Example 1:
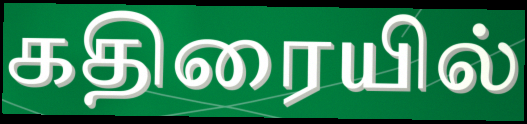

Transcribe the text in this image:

கதிரையில்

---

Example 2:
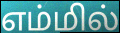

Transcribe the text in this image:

எம்மில்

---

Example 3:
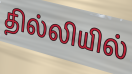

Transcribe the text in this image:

தில்லியில்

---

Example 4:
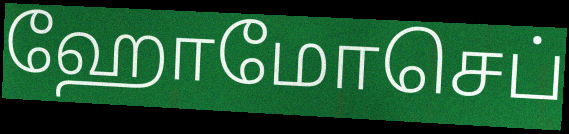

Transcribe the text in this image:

ஹோமோசெப்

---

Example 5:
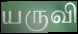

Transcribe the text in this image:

யருவி